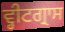
ਵ੍ਹੀਟਗ੍ਰਾਸ